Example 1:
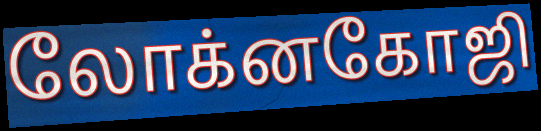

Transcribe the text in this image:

லோக்னகோஜி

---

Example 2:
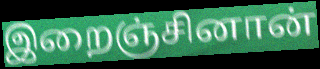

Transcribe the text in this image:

இறைஞ்சினான்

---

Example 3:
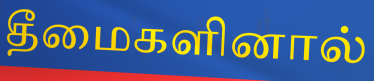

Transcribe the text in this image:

தீமைகளினால்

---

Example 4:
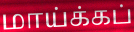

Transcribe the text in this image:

மாய்க்கப்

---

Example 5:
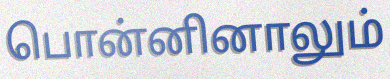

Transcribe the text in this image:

பொன்னினாலும்